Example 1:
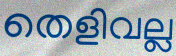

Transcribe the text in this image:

തെളിവല്ല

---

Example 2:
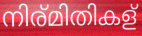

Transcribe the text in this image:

നിര്മിതികള്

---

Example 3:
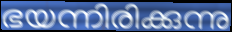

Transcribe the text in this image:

ഭയന്നിരിക്കുന്നു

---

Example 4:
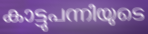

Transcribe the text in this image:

കാട്ടുപന്നിയുടെ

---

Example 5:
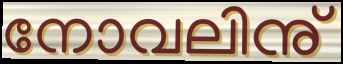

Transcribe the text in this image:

നോവലിനു്